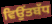
ਵਿਉਂਤਬੱਧ